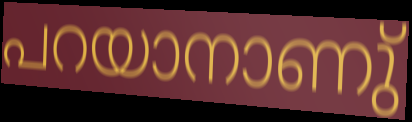
പറയാനാണു്